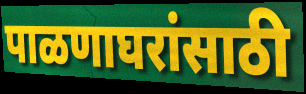
पाळणाघरांसाठी